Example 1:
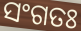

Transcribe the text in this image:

ସଂଗତଃ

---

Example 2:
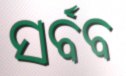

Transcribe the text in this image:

ସର୍ବବ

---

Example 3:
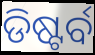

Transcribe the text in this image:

ଡିଷ୍ଟର୍ବ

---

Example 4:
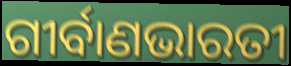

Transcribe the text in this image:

ଗୀର୍ବାଣଭାରତୀ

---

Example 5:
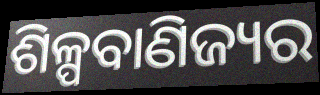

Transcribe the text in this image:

ଶିଳ୍ପବାଣିଜ୍ୟର